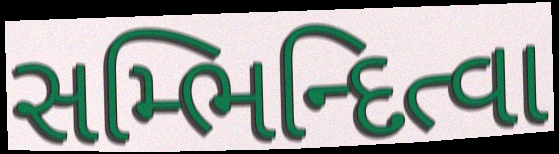
સમ્ભિન્દિત્વા